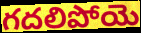
గదలిపోయె